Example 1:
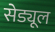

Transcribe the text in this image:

सेड्यूल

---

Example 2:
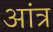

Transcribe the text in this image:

आंत्र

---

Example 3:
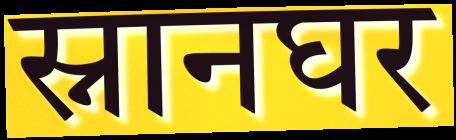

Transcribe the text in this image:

स्नानघर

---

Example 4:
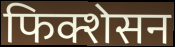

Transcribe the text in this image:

फिक्शेसन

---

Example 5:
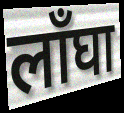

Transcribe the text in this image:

लाँघा